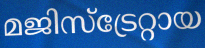
മജിസ്ട്രേറ്റായ